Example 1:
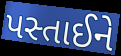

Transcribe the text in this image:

પસ્તાઈને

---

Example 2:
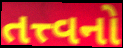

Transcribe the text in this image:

તત્ત્વનો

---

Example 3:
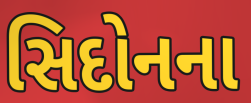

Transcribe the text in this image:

સિદોનના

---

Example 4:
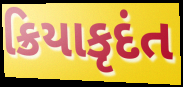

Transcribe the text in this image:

ક્રિયાકૃદંત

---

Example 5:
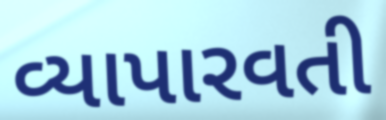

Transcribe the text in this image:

વ્યાપારવતી